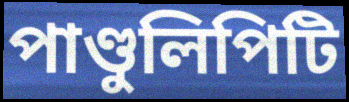
পাণ্ডুলিপিটি